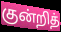
குன்றித்